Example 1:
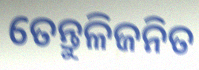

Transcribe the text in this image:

ତେନ୍ତୁଳିଜନିତ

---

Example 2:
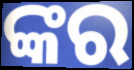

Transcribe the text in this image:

ଙ୍କର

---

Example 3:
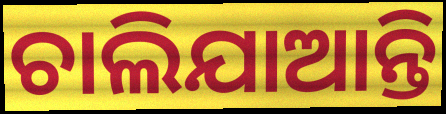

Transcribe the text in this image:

ଚାଲିଯାଆନ୍ତି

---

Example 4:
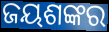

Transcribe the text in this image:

ଜୟଶଙ୍କର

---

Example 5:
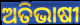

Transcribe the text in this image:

ଅତିଭାଷୀ